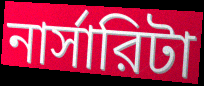
নার্সারিটা